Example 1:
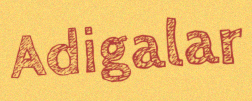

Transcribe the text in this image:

Adigalar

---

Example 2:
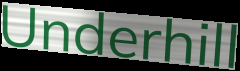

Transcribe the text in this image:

Underhill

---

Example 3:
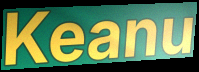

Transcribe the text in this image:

Keanu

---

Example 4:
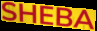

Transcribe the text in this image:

SHEBA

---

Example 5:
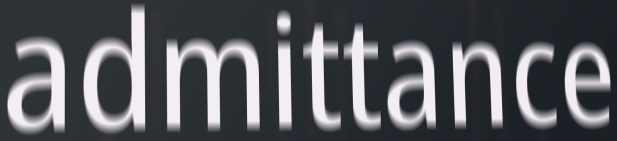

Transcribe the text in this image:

admittance